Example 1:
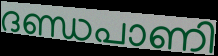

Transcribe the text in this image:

ദണ്ഡപാണി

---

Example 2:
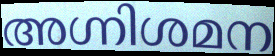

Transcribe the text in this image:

അഗ്നിശമന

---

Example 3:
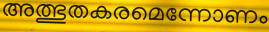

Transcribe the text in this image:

അത്ഭുതകരമെന്നോണം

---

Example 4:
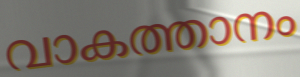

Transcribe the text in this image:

വാകത്താനം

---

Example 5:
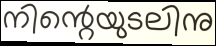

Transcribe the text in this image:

നിന്റെയുടലിനു